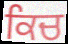
ਕਿਚ